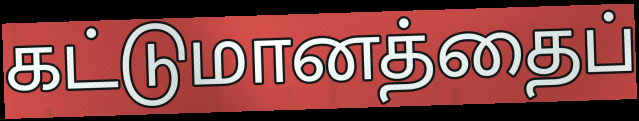
கட்டுமானத்தைப்